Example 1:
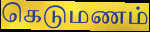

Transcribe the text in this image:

கெடுமணம்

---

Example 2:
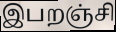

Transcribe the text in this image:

இபறஞ்சி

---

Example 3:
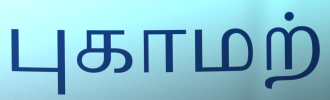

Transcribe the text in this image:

புகாமற்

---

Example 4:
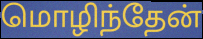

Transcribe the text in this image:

மொழிந்தேன்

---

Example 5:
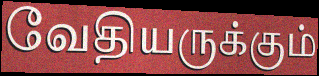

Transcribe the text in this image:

வேதியருக்கும்